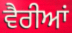
ਵੈਰੀਆਂ